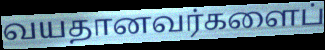
வயதானவர்களைப்